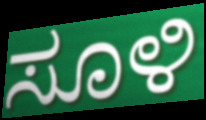
ಸೂಳಿ